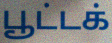
பூட்டக்